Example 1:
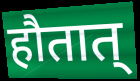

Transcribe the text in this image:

हौतात्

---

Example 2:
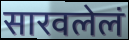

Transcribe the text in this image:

सारवलेलं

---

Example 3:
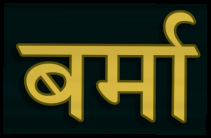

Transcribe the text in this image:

बर्मा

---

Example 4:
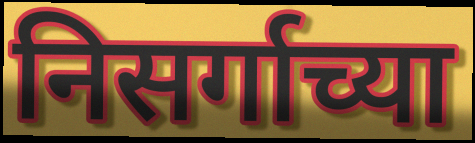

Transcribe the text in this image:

निसर्गाच्या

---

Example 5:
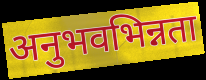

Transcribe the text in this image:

अनुभवभिन्नता